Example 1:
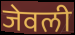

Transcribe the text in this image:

जेवली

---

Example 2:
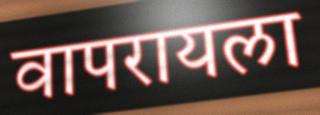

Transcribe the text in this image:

वापरायला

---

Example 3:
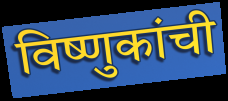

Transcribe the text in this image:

विष्णुकांची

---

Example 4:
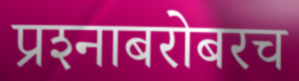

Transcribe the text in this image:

प्रश्‍नाबरोबरच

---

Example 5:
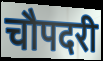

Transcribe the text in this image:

चौपदरी